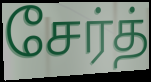
சேர்த்